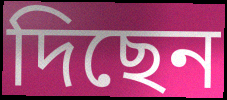
দিছেন